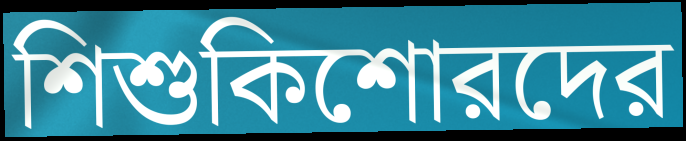
শিশুকিশোরদের